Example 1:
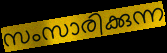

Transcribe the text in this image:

സംസാരിക്കുന്ന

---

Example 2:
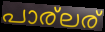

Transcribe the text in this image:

പാര്ലര്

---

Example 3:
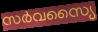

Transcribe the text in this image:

സർവസ്യൈ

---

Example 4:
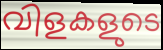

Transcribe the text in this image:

വിളകളുടെ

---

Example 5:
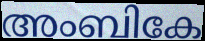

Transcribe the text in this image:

അംബികേ